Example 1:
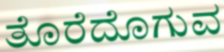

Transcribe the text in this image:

ತೊರೆದೊಗುವ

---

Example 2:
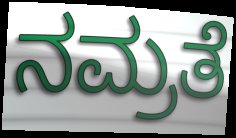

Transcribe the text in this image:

ನಮ್ರತೆ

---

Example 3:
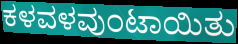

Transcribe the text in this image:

ಕಳವಳವುಂಟಾಯಿತು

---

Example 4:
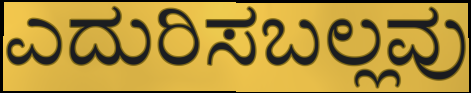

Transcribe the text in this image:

ಎದುರಿಸಬಲ್ಲವು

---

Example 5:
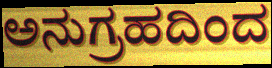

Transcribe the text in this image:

ಅನುಗ್ರಹದಿಂದ